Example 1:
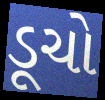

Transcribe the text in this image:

ડૂચો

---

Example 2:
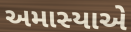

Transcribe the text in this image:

અમાસ્યાએ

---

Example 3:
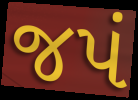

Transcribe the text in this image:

જપં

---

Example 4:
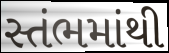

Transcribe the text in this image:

સ્તંભમાંથી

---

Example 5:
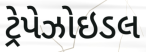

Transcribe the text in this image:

ટ્રેપેઝોઇડલ